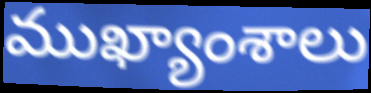
ముఖ్యాంశాలు